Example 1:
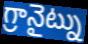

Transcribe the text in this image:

గ్రానైట్ను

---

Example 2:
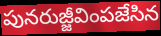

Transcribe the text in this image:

పునరుజ్జీవింపజేసిన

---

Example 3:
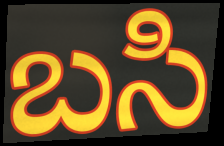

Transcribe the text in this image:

బసి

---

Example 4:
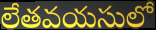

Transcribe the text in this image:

లేతవయసులో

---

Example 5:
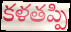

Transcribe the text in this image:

కళతప్పి